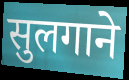
सुलगाने